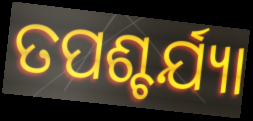
ତପଶ୍ଚର୍ଯ୍ୟା